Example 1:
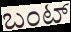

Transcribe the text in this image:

ಬಂಟ್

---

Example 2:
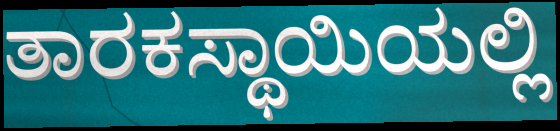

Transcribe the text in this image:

ತಾರಕಸ್ಥಾಯಿಯಲ್ಲಿ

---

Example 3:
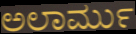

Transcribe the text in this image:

ಅಲಾರ್ಮು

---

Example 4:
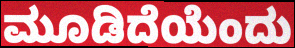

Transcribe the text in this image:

ಮೂಡಿದೆಯೆಂದು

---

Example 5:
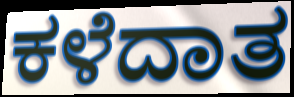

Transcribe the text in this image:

ಕಳೆದಾತ